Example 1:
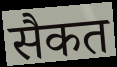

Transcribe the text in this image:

सैकत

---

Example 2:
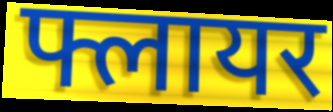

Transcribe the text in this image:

फ्लायर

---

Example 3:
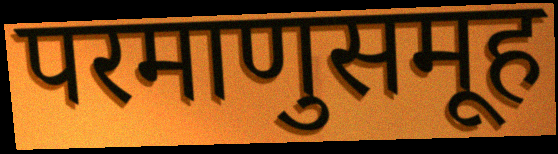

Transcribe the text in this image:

परमाणुसमूह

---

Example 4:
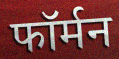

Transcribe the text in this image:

फॉर्मन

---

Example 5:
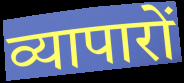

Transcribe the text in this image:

व्यापारों